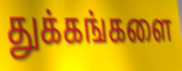
துக்கங்களை